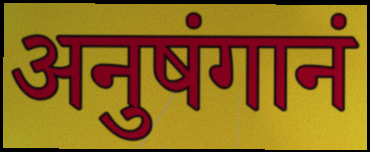
अनुषंगानं